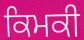
ਕਿਮਕੀ